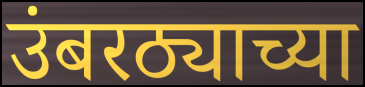
उंबरठ्याच्या